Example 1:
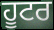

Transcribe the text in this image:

ਹੂਟਰ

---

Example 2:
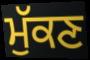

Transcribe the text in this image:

ਮੁੱਕਣ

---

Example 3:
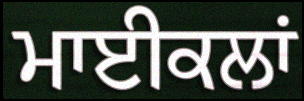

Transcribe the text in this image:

ਮਾਈਕਲਾਂ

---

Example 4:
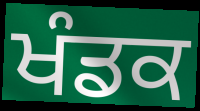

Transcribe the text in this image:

ਖੰਡਕ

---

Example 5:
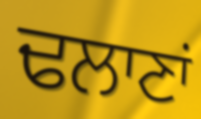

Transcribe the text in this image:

ਢਲਾਣਾਂ